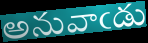
అనువాఁడు